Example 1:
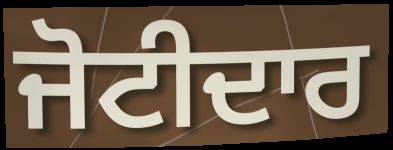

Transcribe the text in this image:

ਜੋਟੀਦਾਰ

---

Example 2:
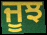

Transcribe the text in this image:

ਜੂਝ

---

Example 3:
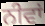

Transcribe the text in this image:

ਨੀਵਾਂ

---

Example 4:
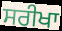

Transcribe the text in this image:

ਸਰੀਖਾ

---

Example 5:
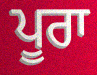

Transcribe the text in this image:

ਪੂਰਾ